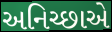
અનિચ્છાએ